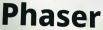
Phaser